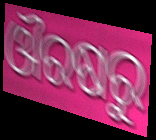
ଔରଷରୁ